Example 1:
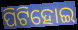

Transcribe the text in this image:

ପିଟିହୋଇ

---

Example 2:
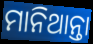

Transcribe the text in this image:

ମାନିଥାନ୍ତା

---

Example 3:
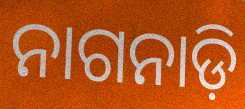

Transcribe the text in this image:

ନାଗନାଡ଼ି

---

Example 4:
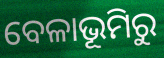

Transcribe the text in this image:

ବେଳାଭୂମିରୁ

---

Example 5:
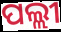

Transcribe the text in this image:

ପଲ୍ଲୀ